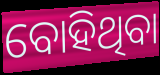
ବୋହିଥିବା